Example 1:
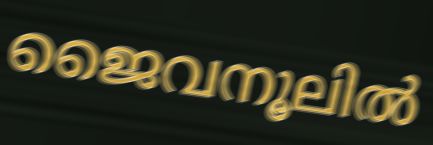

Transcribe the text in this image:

ജൈവനൂലിൽ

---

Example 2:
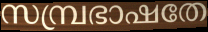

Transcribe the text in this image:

സമ്പ്രഭാഷതേ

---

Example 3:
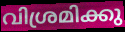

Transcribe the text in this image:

വിശ്രമിക്കു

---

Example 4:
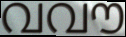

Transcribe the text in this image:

വവൗ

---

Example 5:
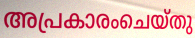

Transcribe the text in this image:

അപ്രകാരംചെയ്തു